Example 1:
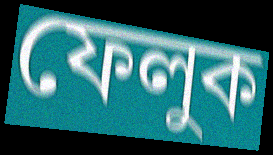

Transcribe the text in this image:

ফেলুক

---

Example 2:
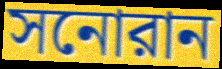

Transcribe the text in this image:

সনোরান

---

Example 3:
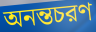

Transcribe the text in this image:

অনন্তচরণ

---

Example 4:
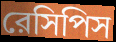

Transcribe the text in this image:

রেসিপিস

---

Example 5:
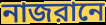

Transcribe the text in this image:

নাজরানে